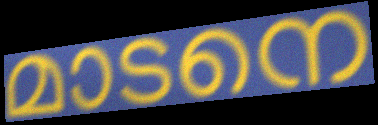
മാടനെ